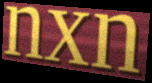
nxn